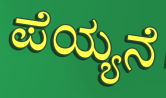
ಪೆಯ್ಯನೆ